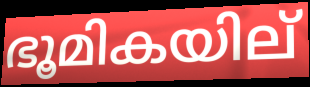
ഭൂമികയില്